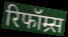
रिफॉम्र्स